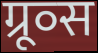
ग्रूव्स